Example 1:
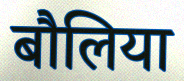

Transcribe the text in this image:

बौलिया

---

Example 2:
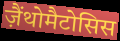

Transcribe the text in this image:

ज़ैंथोमैटोसिस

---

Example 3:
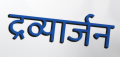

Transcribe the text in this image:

द्रव्यार्जन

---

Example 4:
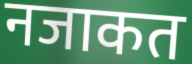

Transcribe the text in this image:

नजाकत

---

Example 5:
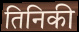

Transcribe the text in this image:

तिनिकी